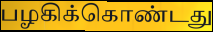
பழகிக்கொண்டது